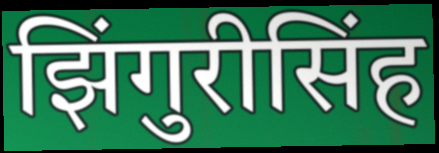
झिंगुरीसिंह